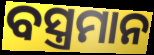
ବସ୍ତ୍ରମାନ